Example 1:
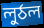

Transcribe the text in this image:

লুঠল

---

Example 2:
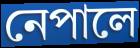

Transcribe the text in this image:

নেপালে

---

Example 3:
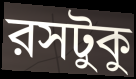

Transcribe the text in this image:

রসটুকু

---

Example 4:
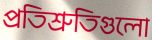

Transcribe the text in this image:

প্রতিশ্রুতিগুলো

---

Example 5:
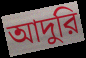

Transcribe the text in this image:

আদুরি